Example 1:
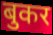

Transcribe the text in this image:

बुकर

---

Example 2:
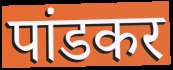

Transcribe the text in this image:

पांडकर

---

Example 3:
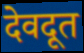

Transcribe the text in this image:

देवदूत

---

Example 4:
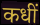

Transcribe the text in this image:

कधीं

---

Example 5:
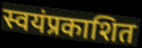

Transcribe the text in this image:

स्वयंप्रकाशित